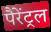
पैरेंट्रल